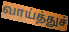
வாய்த்துச்